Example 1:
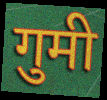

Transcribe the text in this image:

गुमी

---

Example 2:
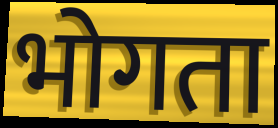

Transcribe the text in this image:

भोगता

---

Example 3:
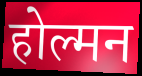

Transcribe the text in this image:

होल्मन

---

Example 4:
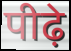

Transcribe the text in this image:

पीढ़े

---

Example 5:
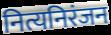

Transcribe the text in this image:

नित्यनिरंजन